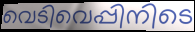
വെടിവെപ്പിനിടെ